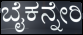
ಬೈಕನ್ನೇರಿ